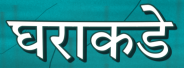
घराकडे